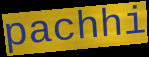
pachhi